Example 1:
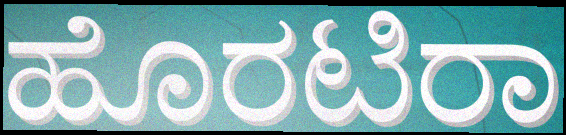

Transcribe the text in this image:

ಹೊರಟಿರಾ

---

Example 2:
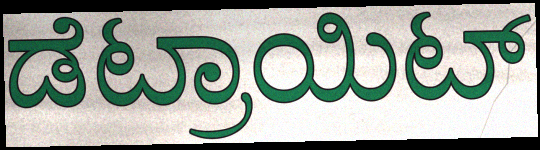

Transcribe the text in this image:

ಡೆಟ್ರಾಯಿಟ್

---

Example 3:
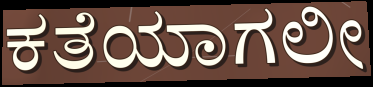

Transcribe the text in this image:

ಕತೆಯಾಗಲೀ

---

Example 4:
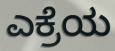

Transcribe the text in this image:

ಎಕ್ರೆಯ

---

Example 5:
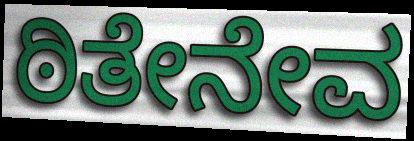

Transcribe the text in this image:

ಠಿತೇನೇವ